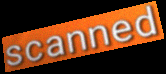
scanned